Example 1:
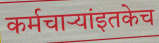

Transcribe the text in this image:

कर्मचाऱ्यांइतकेच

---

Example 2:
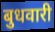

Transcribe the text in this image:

बुधवारी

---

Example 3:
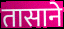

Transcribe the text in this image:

तासाने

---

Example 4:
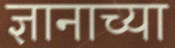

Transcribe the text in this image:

ज्ञानाच्या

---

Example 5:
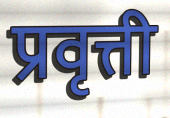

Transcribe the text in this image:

प्रवृत्ती